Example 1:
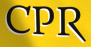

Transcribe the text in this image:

CPR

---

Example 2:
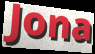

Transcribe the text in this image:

Jona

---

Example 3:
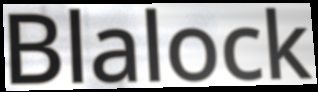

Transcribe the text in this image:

Blalock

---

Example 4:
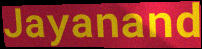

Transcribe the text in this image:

Jayanand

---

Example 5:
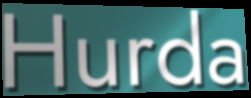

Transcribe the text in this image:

Hurda